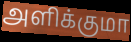
அளிக்குமா